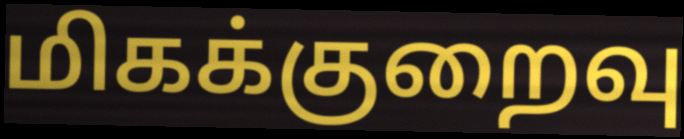
மிகக்குறைவு